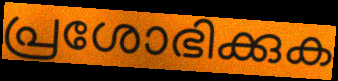
പ്രശോഭിക്കുക